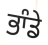
ਭਾੰਡੇ